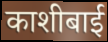
काशीबाई